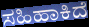
ಸಹಿಹಾಕಿದೆ